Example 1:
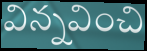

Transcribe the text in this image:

విన్నవించి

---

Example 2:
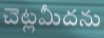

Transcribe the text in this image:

చెట్లమీదను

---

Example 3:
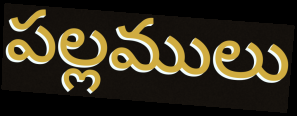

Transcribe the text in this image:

పల్లములు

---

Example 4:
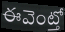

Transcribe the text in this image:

ఈవెంట్తో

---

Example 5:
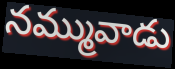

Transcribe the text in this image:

నమ్మువాడు